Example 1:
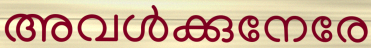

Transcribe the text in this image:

അവൾക്കുനേരേ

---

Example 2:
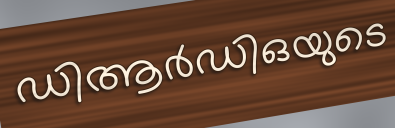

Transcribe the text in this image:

ഡിആർഡിഒയുടെ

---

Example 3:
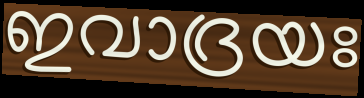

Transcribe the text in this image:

ഇവാദ്രയഃ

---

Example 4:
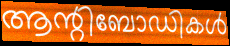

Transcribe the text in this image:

ആന്റിബോഡികൾ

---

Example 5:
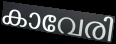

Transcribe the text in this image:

കാവേരി